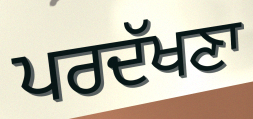
ਪਰਦੱਖਣਾ